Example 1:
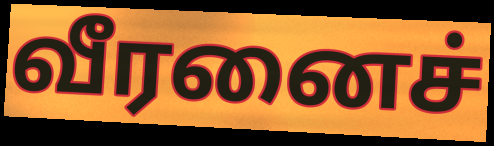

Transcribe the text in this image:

வீரனைச்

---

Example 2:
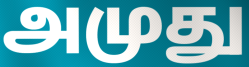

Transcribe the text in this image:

அமுது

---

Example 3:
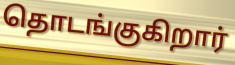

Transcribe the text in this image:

தொடங்குகிறார்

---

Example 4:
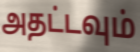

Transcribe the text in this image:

அதட்டவும்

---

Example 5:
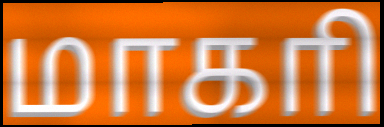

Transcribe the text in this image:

மாகரி